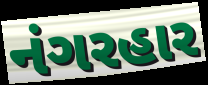
નંગરહાર